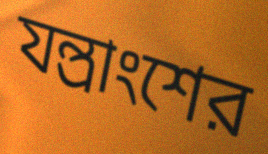
যন্ত্রাংশের